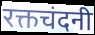
रक्तचंदनी